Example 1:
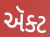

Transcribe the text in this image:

ઍૅક્ટ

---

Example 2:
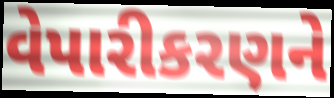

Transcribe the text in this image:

વેપારીકરણને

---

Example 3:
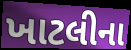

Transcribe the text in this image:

ખાટલીના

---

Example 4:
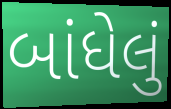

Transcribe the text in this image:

બાંધેલું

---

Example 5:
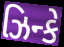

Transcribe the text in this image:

ઝિન્કે